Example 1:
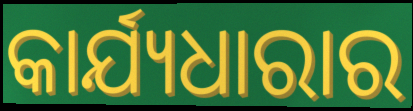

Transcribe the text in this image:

କାର୍ଯ୍ୟଧାରାର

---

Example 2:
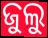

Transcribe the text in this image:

ଜୁଲୁ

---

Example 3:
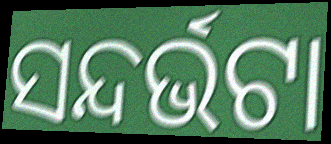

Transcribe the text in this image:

ସନ୍ଦର୍ଭଟା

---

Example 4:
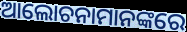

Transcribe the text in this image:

ଆଲୋଚନାମାନଙ୍କରେ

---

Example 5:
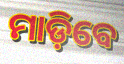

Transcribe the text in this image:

ମାଡ଼ିବେ